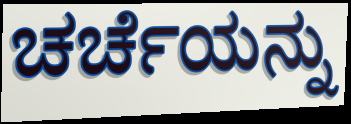
ಚರ್ಚೆಯನ್ನು